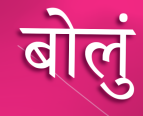
बोलुं